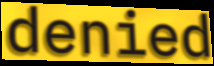
denied